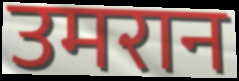
उमरान